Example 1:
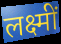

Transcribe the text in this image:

लक्ष्मीं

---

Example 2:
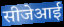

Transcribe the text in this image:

सीजेआई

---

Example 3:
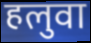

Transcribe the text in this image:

हलुवा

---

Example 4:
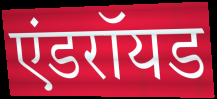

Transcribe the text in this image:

एंडरॉयड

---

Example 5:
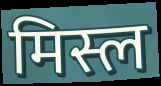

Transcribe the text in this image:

मिस्ल